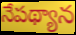
నేపథ్యాన